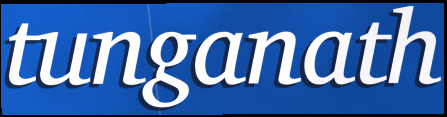
tunganath